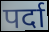
पर्दा